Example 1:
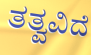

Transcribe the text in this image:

ತತ್ವವಿದೆ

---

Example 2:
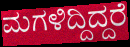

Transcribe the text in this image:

ಮಗಳಿದ್ದಿದ್ದರೆ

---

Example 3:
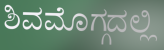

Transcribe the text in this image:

ಶಿವಮೊಗ್ಗದಲ್ಲಿ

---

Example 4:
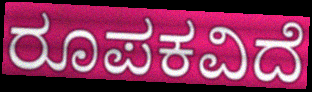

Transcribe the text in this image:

ರೂಪಕವಿದೆ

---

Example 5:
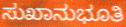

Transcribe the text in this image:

ಸುಖಾನುಭೂತಿ